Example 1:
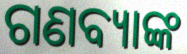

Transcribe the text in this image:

ଗଣବ୍ୟାଙ୍କ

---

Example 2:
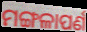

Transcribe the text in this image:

ମଙ୍ଗଳାପର୍ଣ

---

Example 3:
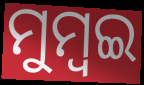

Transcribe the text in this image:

ମୁମ୍ବଇ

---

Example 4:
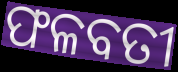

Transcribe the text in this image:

ଫଳବତୀ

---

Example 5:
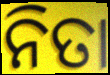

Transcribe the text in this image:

ନିତା